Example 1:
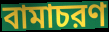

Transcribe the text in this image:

বামাচরণ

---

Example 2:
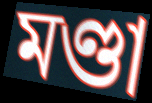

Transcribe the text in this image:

মণ্ডা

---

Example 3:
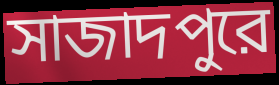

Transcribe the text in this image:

সাজাদপুরে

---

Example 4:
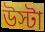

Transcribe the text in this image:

উস্টা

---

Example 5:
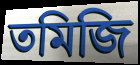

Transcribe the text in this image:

তমিজি